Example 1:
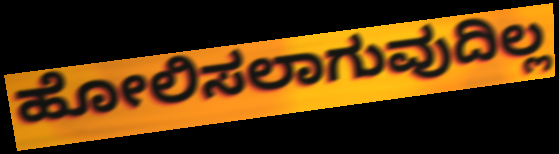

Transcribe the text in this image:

ಹೋಲಿಸಲಾಗುವುದಿಲ್ಲ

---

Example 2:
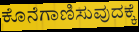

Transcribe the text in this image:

ಕೊನೆಗಾಣಿಸುವುದಕ್ಕೆ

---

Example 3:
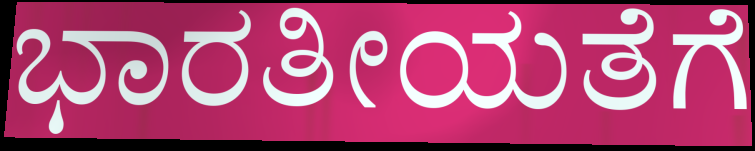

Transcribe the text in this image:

ಭಾರತೀಯತೆಗೆ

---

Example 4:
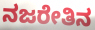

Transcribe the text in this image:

ನಜರೇತಿನ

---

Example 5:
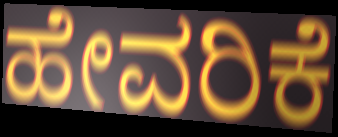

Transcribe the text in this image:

ಹೇವರಿಕೆ